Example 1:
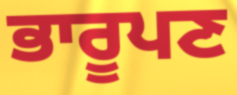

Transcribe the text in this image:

ਭਾਰੂਪਣ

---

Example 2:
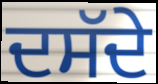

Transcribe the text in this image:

ਦਸੱਦੇ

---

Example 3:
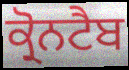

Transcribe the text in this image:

ਕ੍ਰੋਨਟੈਬ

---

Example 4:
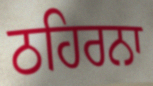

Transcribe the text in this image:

ਠਹਿਰਨਾ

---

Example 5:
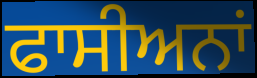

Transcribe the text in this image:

ਫਾਸੀਅਨਾਂ